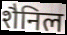
शैनिल